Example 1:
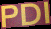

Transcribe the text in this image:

PDI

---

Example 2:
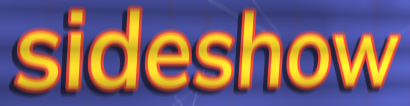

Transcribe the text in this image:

sideshow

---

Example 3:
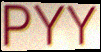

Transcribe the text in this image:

PYY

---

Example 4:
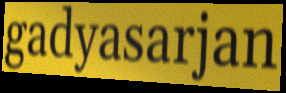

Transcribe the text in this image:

gadyasarjan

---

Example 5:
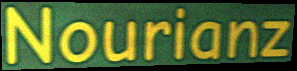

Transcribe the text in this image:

Nourianz